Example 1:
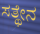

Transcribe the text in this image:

ಸತ್ಥೇನ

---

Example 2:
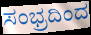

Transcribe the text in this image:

ಸಂಭ್ರದಿಂದ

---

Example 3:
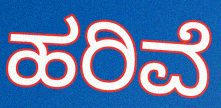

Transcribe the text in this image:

ಹರಿವೆ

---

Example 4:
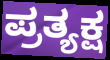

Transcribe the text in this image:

ಪ್ರತ್ಯಕ್ಷ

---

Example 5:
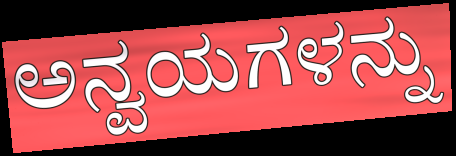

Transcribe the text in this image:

ಅನ್ವಯಗಳನ್ನು